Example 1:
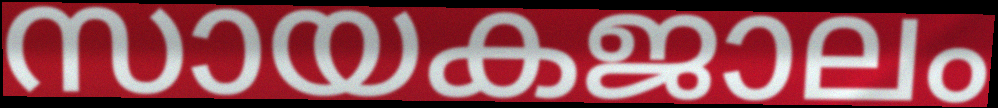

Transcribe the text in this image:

സായകജാലം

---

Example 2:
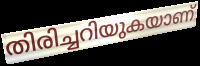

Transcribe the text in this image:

തിരിച്ചറിയുകയാണ്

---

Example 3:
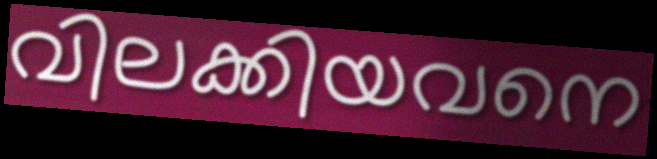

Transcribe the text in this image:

വിലക്കിയവനെ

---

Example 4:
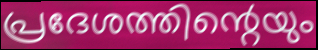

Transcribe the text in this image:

പ്രദേശത്തിന്റെയും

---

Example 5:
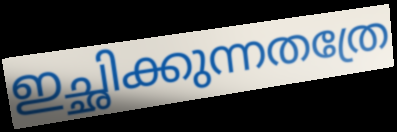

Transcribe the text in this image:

ഇച്ഛിക്കുന്നതത്രേ